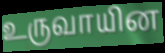
உருவாயின